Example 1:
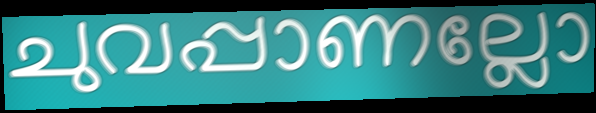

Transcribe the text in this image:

ചുവപ്പാണല്ലോ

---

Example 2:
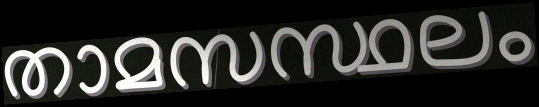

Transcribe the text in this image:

താമസസ്ഥലം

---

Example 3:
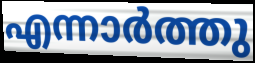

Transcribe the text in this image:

എന്നാർത്തു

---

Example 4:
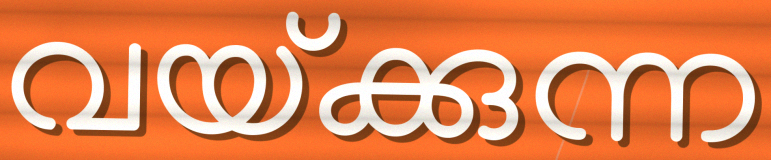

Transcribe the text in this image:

വയ്‌ക്കുന്ന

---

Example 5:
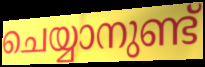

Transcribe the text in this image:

ചെയ്യാനുണ്ട്